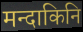
मन्दाकिनि